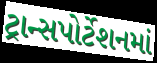
ટ્રાન્સપોર્ટેશનમાં